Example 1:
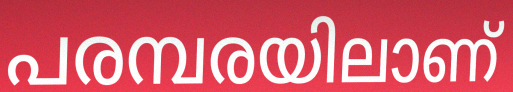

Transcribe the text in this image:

പരമ്പരയിലാണ്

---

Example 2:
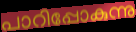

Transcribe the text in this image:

പാറിപ്പോകുന്നു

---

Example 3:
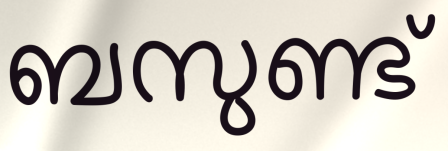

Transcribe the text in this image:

ബസുണ്ട്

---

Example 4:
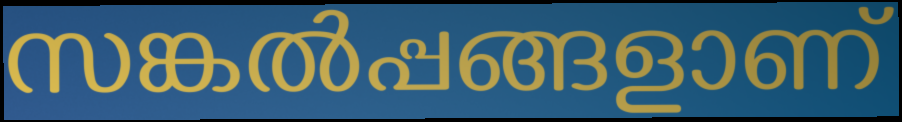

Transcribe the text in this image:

സങ്കൽപ്പങ്ങളാണ്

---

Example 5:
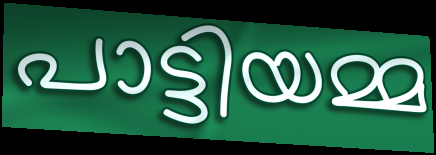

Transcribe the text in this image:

പാട്ടിയമ്മ